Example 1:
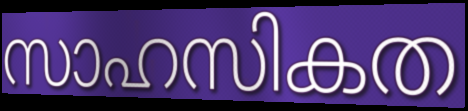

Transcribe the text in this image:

സാഹസികത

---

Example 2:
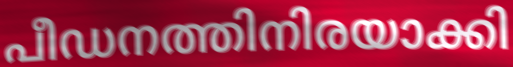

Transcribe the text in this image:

പീഡനത്തിനിരയാക്കി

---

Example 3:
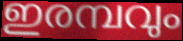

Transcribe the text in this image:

ഇരമ്പവും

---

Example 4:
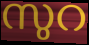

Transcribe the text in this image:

സുറ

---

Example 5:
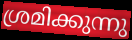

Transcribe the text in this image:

ശ്രമിക്കുന്നു